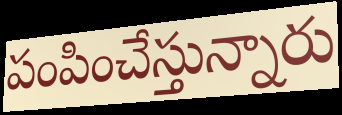
పంపించేస్తున్నారు